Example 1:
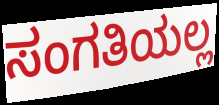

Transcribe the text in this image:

ಸಂಗತಿಯಲ್ಲ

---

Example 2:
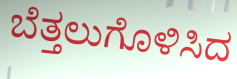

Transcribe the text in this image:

ಬೆತ್ತಲುಗೊಳಿಸಿದ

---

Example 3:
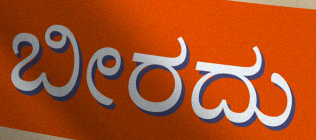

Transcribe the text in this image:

ಬೀರದು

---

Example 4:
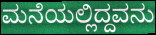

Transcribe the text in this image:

ಮನೆಯಲ್ಲಿದ್ದವನು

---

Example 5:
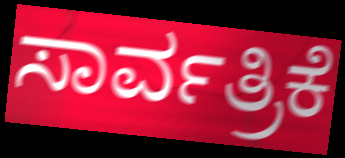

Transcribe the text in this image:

ಸಾರ್ವತ್ರಿಕೆ